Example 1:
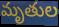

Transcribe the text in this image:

మృతుల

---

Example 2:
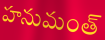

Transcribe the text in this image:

హనుమంత్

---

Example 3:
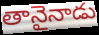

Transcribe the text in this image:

తానైనాడు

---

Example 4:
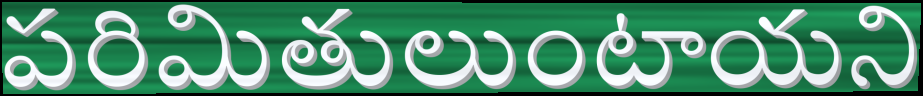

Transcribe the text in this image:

పరిమితులుంటాయని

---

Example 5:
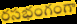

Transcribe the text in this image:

రసభంగంగా